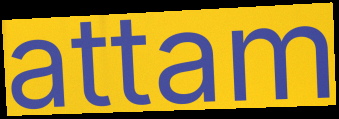
attam